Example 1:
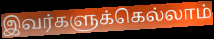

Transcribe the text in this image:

இவர்களுக்கெல்லாம்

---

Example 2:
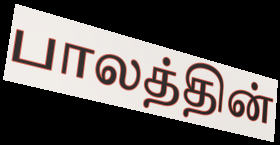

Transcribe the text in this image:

பாலத்தின்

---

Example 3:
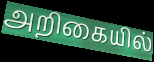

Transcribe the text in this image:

அறிகையில்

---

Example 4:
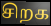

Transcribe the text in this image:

சிறக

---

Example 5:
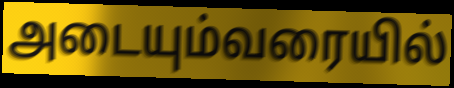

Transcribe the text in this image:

அடையும்வரையில்